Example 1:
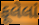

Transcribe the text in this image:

ફૂલેલાં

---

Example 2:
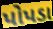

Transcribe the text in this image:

પોપડા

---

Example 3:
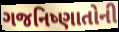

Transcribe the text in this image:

ગજનિષ્ણાતોની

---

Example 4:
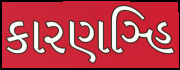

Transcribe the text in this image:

કારણઞ્હિ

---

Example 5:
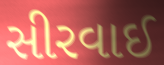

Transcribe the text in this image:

સીરવાઈ